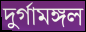
দুর্গামঙ্গল